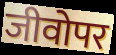
जीवोपर